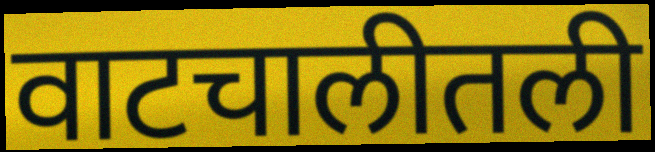
वाटचालीतली